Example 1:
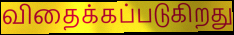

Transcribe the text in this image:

விதைக்கப்படுகிறது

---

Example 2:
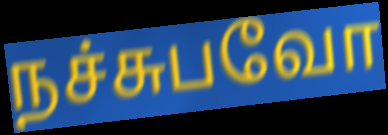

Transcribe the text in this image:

நச்சுபவோ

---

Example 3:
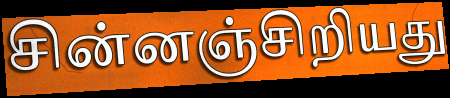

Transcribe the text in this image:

சின்னஞ்சிறியது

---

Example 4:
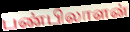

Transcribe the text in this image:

பண்பிலாளன்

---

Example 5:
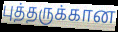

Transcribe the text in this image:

புத்தருக்கான